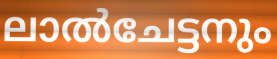
ലാൽചേട്ടനും